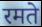
रमते